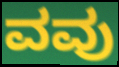
ವವು